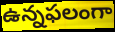
ఉన్నఫలంగా